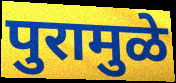
पुरामुळे